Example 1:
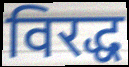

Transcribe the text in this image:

विरद्ध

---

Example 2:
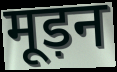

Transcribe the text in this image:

मूड़न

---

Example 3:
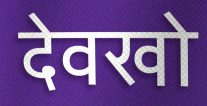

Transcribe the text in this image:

देवखो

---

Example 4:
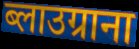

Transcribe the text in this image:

ब्लाउग्राना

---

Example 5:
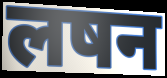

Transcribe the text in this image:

लषन